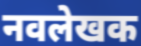
नवलेखक